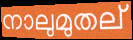
നാലുമുതല്